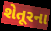
શેતૂરના